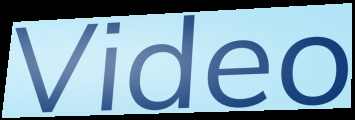
Video